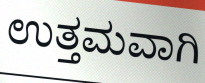
ಉತ್ತಮವಾಗಿ